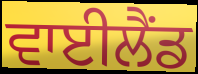
ਵਾਈਲੈਂਡ